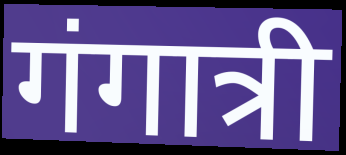
गंगात्री